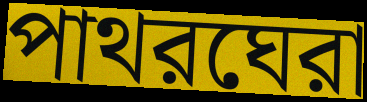
পাথরঘেরা